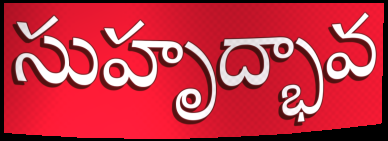
సుహృద్భావ